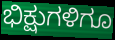
ಭಿಕ್ಷುಗಳಿಗೂ